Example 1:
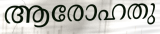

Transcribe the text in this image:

ആരോഹതു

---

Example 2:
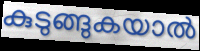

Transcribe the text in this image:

കുടുങ്ങുകയാൽ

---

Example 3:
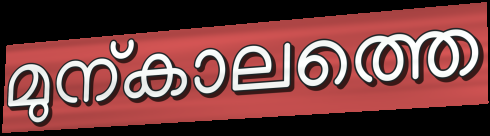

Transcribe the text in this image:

മുന്കാലത്തെ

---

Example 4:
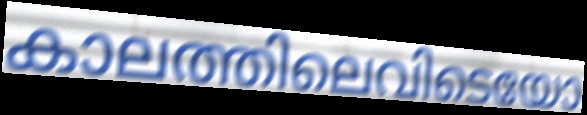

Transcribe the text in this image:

കാലത്തിലെവിടെയോ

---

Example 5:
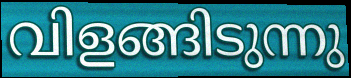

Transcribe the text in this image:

വിളങ്ങിടുന്നു